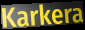
Karkera